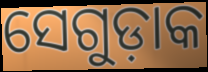
ସେଗୁଡ଼ାକ